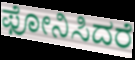
ಫೋನಿಸಿದರೆ